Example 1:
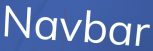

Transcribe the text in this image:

Navbar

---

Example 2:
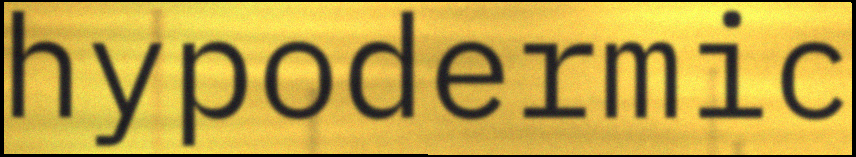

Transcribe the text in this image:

hypodermic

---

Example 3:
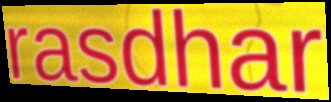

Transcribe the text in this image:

rasdhar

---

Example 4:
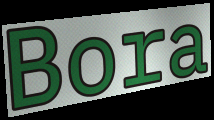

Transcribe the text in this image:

Bora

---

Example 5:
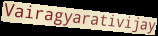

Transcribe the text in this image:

Vairagyarativijay